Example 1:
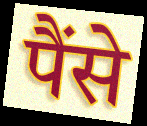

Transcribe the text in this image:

पैंसे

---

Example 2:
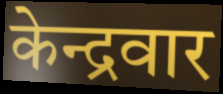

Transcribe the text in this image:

केन्द्रवार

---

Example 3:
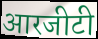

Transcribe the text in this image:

आरजीटी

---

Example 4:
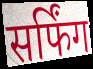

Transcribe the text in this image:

सर्फिंग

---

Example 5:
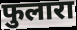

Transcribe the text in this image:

फुलारा